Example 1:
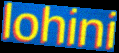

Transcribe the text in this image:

lohini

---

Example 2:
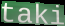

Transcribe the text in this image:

taki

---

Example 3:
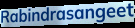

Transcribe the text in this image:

Rabindrasangeet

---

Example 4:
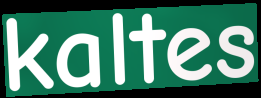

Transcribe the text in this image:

kaltes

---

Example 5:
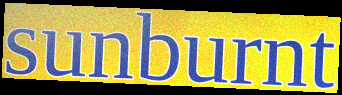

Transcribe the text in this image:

sunburnt